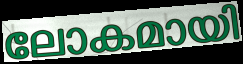
ലോകമായി